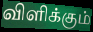
விளிக்கும்